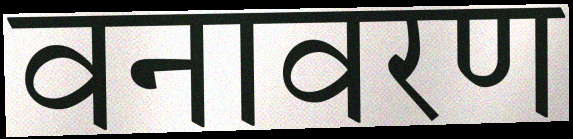
वनावरण